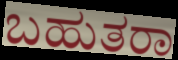
ಬಹುತರಾ